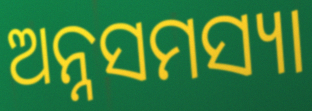
ଅନ୍ନସମସ୍ୟା